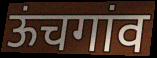
ऊंचगांव